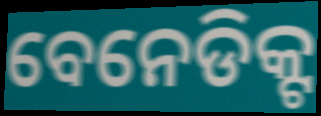
ବେନେଡିକ୍ଟ